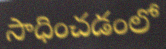
సాధించడంలో